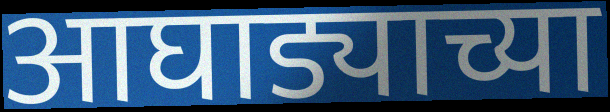
आघाड्याच्या